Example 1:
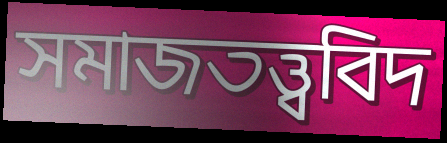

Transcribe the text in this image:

সমাজতত্ত্ববিদ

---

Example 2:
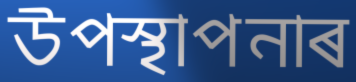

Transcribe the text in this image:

উপস্থাপনাৰ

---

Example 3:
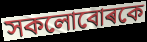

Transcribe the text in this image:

সকলোবোৰকে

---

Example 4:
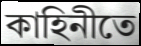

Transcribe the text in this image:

কাহিনীতে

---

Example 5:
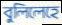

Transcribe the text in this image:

বুলিলেহে